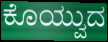
ಕೊಯ್ವುದ